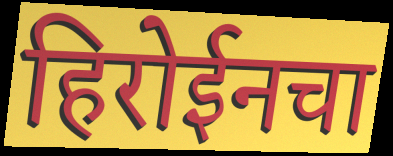
हिरोईनचा